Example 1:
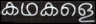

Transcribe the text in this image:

കഥകളെ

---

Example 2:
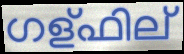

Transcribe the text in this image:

ഗള്ഫില്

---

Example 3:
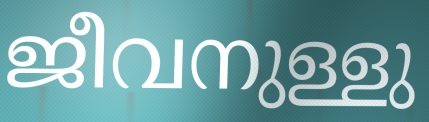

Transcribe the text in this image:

ജീവനുള്ളു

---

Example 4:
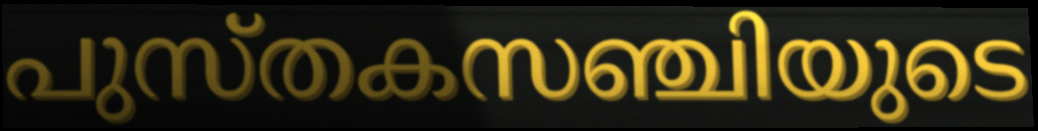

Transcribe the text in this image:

പുസ്തകസഞ്ചിയുടെ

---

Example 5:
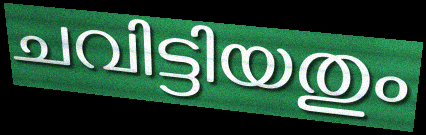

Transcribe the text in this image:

ചവിട്ടിയതും